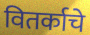
वितर्काचे